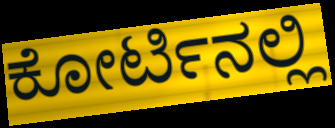
ಕೋರ್ಟಿನಲ್ಲಿ